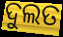
ଦୁଲତ